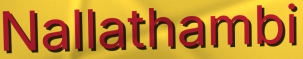
Nallathambi